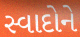
સ્વાદોને